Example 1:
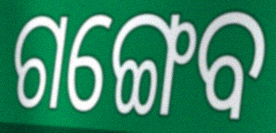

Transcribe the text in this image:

ଗଙ୍ଗେବ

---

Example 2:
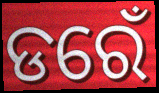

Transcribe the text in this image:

ଡରେଁ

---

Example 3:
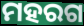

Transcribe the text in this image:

ମହରଗ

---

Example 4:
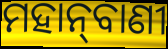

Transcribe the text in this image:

ମହାନ୍‌ବାଣୀ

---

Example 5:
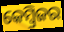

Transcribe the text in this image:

କେମ୍ବ୍ରିଜର